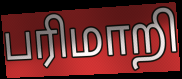
பரிமாறி